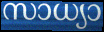
സാധ്യാ